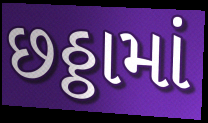
છઠ્ઠામાં